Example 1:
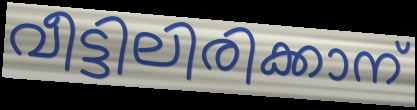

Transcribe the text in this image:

വീട്ടിലിരിക്കാന്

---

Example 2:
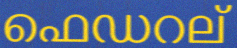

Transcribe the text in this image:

ഫെഡറല്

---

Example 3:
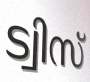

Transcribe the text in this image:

ട്വിസ്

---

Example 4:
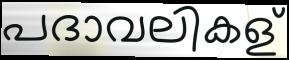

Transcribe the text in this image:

പദാവലികള്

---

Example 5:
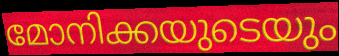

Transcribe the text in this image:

മോനിക്കയുടെയും